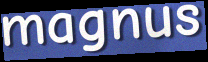
magnus